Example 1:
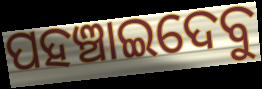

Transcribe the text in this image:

ପହଞ୍ଚାଇଦେବୁ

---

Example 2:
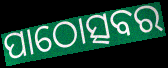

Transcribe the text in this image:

ପାଠୋତ୍ସବର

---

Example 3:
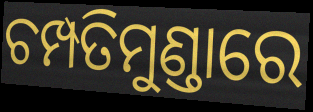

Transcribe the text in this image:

ଚମ୍ପତିମୁଣ୍ଡାରେ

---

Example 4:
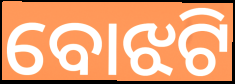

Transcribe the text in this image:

ବୋଝଟି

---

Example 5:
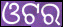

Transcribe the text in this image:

ଓଟର